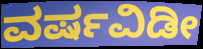
ವರ್ಷವಿಡೀ